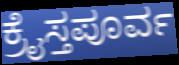
ಕ್ರೈಸ್ತಪೂರ್ವ